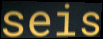
seis